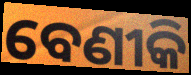
ବେଣୀକି